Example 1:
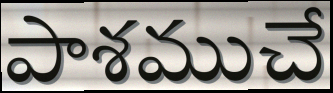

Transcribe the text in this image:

పాశముచే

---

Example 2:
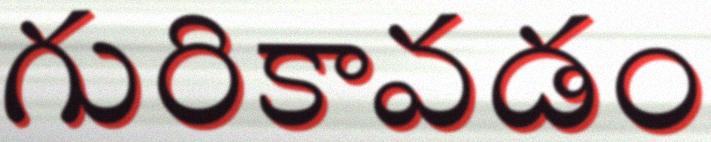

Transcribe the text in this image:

గురికావడం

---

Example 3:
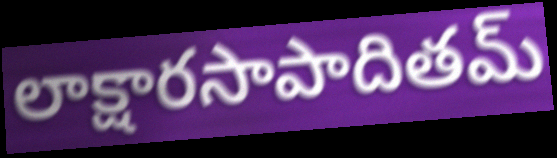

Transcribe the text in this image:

లాక్షారసాపాదితమ్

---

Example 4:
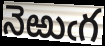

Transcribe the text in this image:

నెఱుఁగ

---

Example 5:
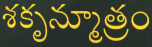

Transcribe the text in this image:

శకృన్మూత్రం